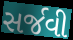
સર્જવી